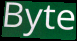
Byte